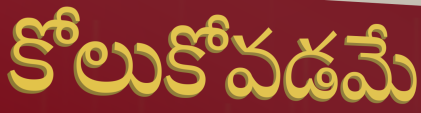
కోలుకోవడమే